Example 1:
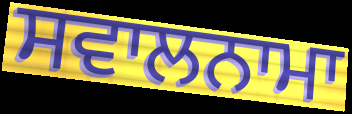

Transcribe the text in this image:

ਸਵਾਲਨਾਮਾ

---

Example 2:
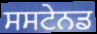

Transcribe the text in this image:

ਸਸਟੇਨਡ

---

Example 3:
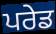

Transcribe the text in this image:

ਪਰੇਡ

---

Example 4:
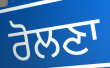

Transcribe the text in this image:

ਰੋਲਣਾ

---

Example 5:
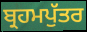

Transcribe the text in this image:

ਬ੍ਰਹਮਪੁੱਤਰ